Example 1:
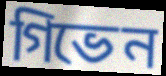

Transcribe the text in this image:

গিভেন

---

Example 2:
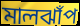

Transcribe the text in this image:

মালঝাঁপ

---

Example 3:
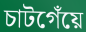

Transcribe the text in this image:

চাটগেঁয়ে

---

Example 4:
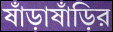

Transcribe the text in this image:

ষাঁড়াষাঁড়ির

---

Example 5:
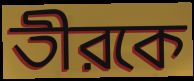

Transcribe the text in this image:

তীরকে